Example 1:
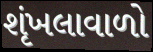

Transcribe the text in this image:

શૃંખલાવાળો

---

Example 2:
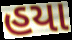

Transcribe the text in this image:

હયા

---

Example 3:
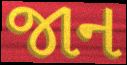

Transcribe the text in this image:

જાન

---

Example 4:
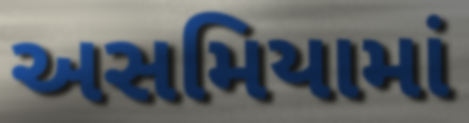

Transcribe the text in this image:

અસમિયામાં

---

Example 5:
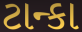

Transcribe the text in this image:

ટાન્કા